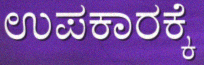
ಉಪಕಾರಕ್ಕೆ